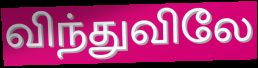
விந்துவிலே